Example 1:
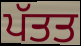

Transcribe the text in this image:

ਪੱਤਤ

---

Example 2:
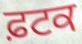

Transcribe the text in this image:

ਫ਼ਟਕ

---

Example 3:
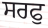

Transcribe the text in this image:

ਸਰਫੁ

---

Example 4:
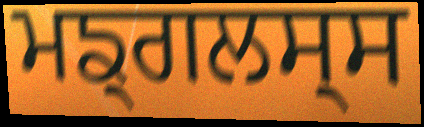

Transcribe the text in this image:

ਮਙ੍ਗਲਸ੍ਸ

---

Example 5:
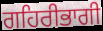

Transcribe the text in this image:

ਗਹਿਰੀਭਾਗੀ